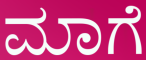
ಮಾಗೆ